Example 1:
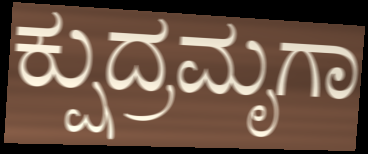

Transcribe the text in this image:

ಕ್ಷುದ್ರಮೃಗಾ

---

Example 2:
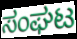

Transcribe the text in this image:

ಸಂಘಟ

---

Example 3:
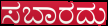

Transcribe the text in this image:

ಸಬಾರದು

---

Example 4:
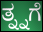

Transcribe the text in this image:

ತ್ನ್ನಗೆ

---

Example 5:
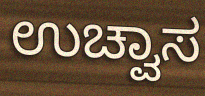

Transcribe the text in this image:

ಉಚ್ವಾಸ